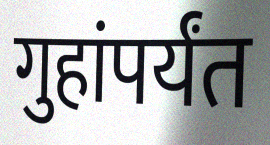
गुहांपर्यंत